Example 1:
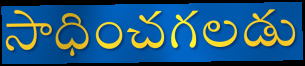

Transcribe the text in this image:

సాధించగలడు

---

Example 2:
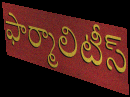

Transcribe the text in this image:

ఫార్మాలిటీస్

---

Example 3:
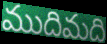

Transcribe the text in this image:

ముదిమది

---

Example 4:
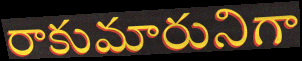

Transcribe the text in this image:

రాకుమారునిగా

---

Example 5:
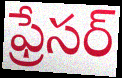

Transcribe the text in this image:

ఫ్రేసర్